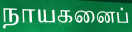
நாயகனைப்